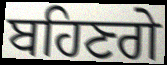
ਬਹਿਣਗੇ